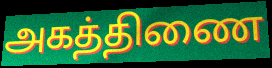
அகத்திணை